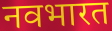
नवभारत